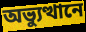
অভ্যুত্থানে